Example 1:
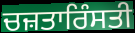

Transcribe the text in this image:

ਚਜ਼ਤਾਰਿੰਸਤੀ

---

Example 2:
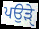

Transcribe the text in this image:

ਪਉੜੑੇ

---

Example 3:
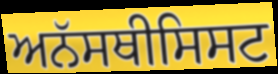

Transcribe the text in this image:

ਅਨੱਸਥੀਸਿਸਟ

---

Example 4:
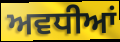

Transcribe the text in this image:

ਅਵਧੀਆਂ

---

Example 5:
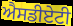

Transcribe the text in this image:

ਐਸਡੀਏਟੀ